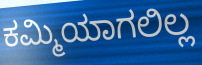
ಕಮ್ಮಿಯಾಗಲಿಲ್ಲ